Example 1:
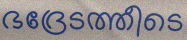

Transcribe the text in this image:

ഭദ്രേടത്തീടെ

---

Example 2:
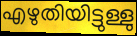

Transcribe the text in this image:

എഴുതിയിട്ടുള്ളു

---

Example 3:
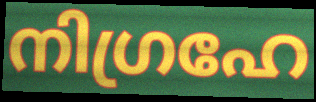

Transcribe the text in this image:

നിഗ്രഹേ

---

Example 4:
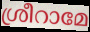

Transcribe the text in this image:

ശ്രീറാമേ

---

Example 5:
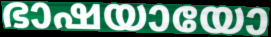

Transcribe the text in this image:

ഭാഷയായോ